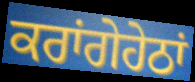
ਕਰਾਂਗੇਹੇਠਾਂ